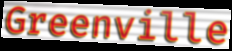
Greenville